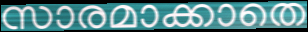
സാരമാക്കാതെ